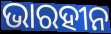
ଭାରହୀନ